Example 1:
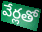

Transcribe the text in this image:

వేర్లతో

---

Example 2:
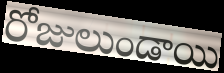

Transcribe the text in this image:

రోజులుండాయి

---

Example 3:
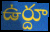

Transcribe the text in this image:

ఉర్దూ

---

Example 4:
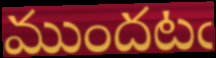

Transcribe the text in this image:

ముందటఁ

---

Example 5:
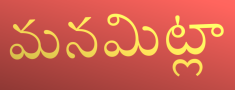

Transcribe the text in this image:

మనమిట్లా